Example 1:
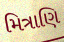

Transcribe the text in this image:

મિત્રાણિ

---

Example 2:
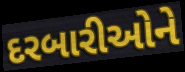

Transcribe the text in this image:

દરબારીઓને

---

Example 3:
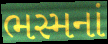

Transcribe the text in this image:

ભસ્મનાં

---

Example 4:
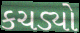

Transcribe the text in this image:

કચડ્યો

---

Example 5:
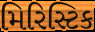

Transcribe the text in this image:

મિરિસ્ટિક